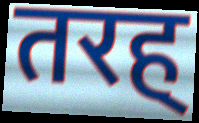
तरह्